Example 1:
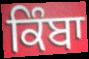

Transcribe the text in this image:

ਕਿੰਬਾ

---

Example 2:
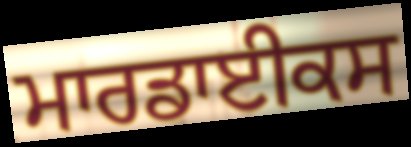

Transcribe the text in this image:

ਮਾਰਡਾਈਕਸ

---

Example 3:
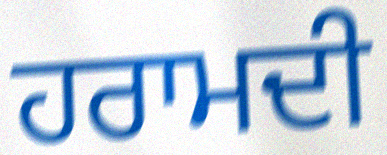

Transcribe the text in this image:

ਹਰਾਮਦੀ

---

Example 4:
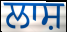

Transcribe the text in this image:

ਲਾਸ਼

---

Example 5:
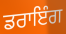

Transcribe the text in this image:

ਡਰਾਇੰਗ